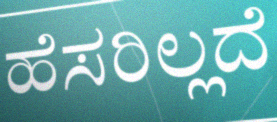
ಹೆಸರಿಲ್ಲದೆ